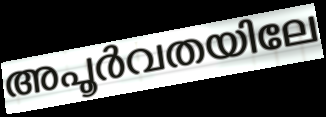
അപൂർവതയിലേ